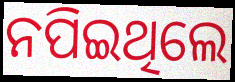
ନପିଇଥିଲେ